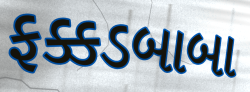
ફક્કડબાબા